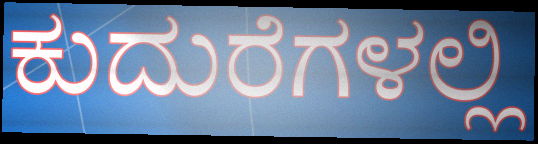
ಕುದುರೆಗಳಲ್ಲಿ